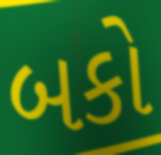
બકો